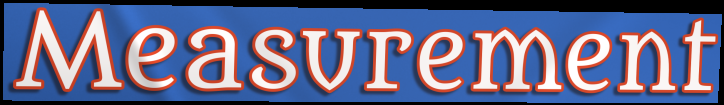
Measurement